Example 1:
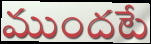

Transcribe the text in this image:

ముందటే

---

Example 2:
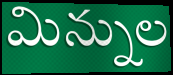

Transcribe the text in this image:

మిన్నుల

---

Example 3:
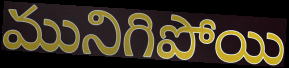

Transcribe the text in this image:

మునిగిపోయి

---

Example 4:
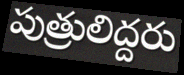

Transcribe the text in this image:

పుత్రులిద్దరు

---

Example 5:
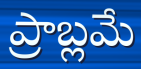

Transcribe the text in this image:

ప్రాబ్లమే